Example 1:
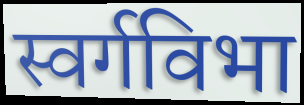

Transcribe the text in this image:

स्वर्गविभा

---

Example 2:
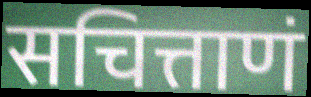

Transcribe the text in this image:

सचित्ताणं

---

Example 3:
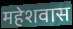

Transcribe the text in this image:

महेशवास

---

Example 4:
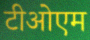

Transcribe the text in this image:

टीओएम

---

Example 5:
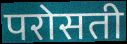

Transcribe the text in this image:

परोसती